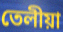
তেলীয়া